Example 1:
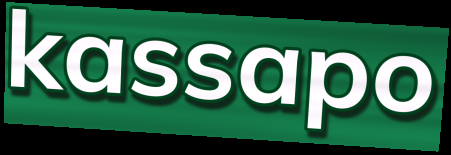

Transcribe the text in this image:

kassapo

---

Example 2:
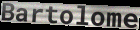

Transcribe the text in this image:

Bartolome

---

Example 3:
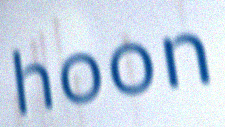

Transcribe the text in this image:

hoon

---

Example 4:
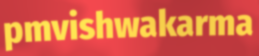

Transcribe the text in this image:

pmvishwakarma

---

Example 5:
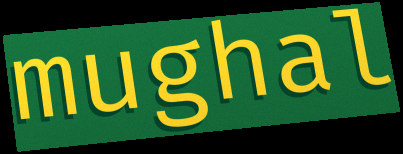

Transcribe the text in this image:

mughal